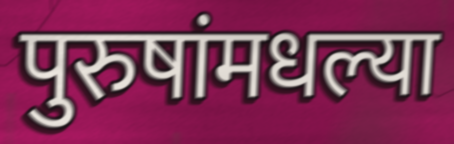
पुरुषांमधल्या